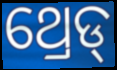
ଥ୍ରେଡ୍